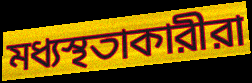
মধ্যস্থতাকারীরা